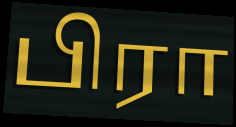
பிரா